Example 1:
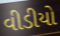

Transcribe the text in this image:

વીડીયો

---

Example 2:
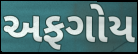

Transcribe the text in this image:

અફગોય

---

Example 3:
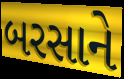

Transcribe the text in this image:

બરસાને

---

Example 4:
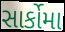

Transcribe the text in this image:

સાર્કોમા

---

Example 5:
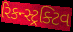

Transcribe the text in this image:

રિકન્સ્ટ્રક્ટિવ